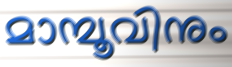
മാമ്പൂവിനും